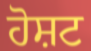
ਹੋਸ਼ਟ